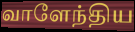
வாளேந்திய